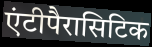
एंटीपैरासिटिक